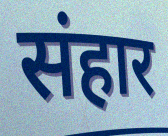
संहार